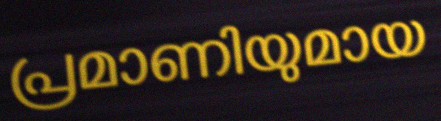
പ്രമാണിയുമായ